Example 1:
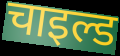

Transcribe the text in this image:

चाइल्ड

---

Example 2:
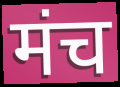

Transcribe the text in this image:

मंच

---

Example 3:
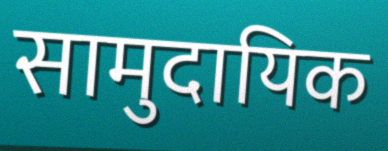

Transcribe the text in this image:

सामुदायिक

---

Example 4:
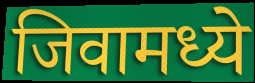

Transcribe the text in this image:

जिवामध्ये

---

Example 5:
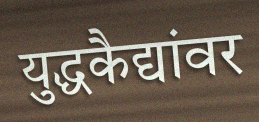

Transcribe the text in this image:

युद्धकैद्यांवर